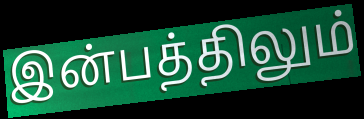
இன்பத்திலும்